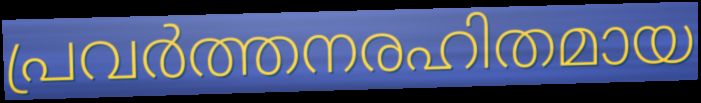
പ്രവർത്തനരഹിതമായ